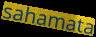
sahamata